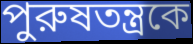
পুরুষতন্ত্রকে